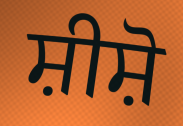
ਸ਼ੀਸ਼ੋ